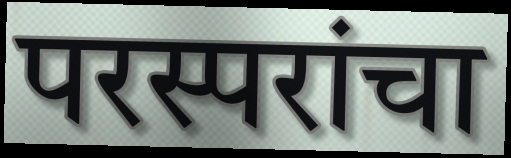
परस्परांचा